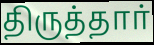
திருத்தார்